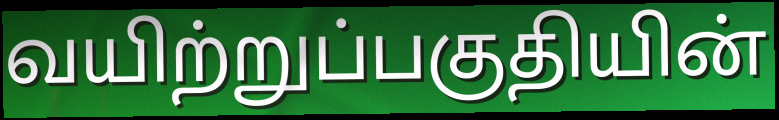
வயிற்றுப்பகுதியின்